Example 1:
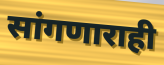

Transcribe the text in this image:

सांगणाराही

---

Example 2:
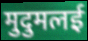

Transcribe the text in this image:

मुदुमलई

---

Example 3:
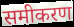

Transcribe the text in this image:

समीकरण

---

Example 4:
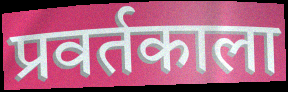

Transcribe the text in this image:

प्रवर्तकाला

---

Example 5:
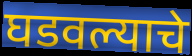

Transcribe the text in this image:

घडवल्याचे